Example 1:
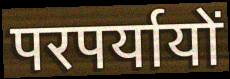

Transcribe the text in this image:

परपर्यायों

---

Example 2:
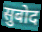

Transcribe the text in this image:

सुबोद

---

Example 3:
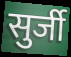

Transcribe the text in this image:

सुर्जी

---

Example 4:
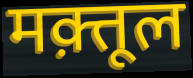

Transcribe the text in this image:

मक़्तूल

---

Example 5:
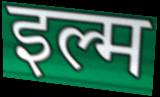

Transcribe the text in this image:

इल्म